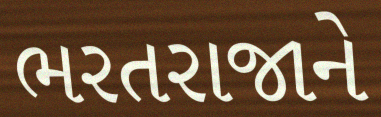
ભરતરાજાને